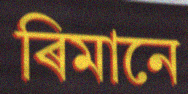
ৰিমানে